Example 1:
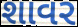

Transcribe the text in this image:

શાવર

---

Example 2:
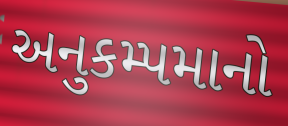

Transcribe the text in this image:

અનુકમ્પમાનો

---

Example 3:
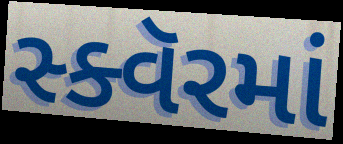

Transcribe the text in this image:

સ્ક્વૅરમાં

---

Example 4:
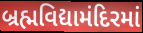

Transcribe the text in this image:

બ્રહ્મવિદ્યામંદિરમાં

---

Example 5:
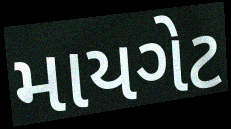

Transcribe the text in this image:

માયગેટ